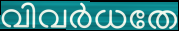
വിവർധതേ